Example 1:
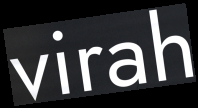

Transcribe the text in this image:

virah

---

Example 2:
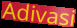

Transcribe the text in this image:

Adivasi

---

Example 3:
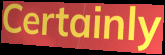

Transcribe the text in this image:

Certainly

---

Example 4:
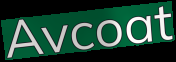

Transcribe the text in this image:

Avcoat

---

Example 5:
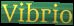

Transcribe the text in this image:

Vibrio